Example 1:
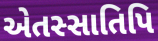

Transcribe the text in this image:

એતસ્સાતિપિ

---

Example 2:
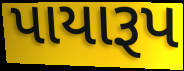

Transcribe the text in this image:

પાયારૂપ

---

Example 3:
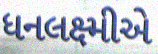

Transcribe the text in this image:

ધનલક્ષ્મીએ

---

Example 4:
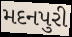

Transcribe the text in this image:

મદનપુરી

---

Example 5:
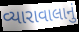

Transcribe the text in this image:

વ્યારાવાલાનું